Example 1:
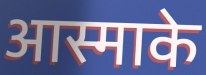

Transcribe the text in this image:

आस्माके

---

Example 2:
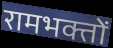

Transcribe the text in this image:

रामभक्तों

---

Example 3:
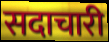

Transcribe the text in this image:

सदाचारी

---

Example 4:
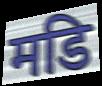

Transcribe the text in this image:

मडि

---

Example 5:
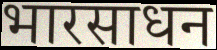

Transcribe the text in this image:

भारसाधन